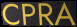
CPRA